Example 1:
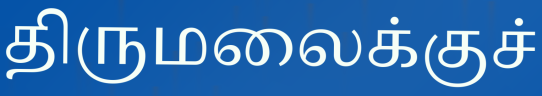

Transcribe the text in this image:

திருமலைக்குச்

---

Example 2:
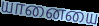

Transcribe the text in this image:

யானையை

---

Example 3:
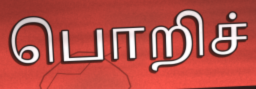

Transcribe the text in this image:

பொறிச்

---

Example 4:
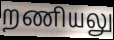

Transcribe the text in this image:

றணியலு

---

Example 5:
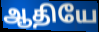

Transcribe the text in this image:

ஆதியே